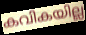
കവികയില്ല